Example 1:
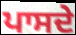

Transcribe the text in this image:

ਪਾਸਦੇ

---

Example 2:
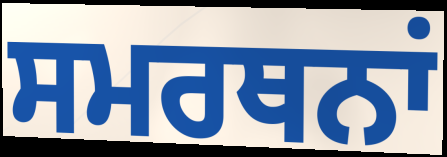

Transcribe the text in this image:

ਸਮਰਥਨਾਂ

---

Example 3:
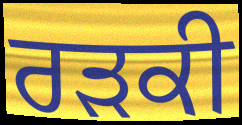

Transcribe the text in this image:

ਰੜਕੀ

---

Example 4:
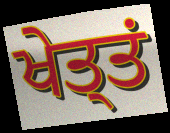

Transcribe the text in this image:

ਖੇਤ੍ਤਂ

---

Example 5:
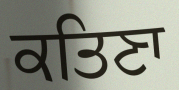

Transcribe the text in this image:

ਕਤਿਣਾ